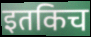
इतकिच